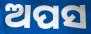
ଅପସ